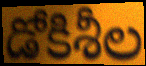
డోకిశీల